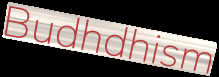
Budhdhism